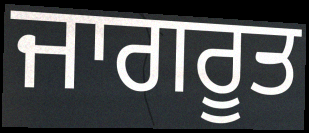
ਜਾਗਰੂਤ